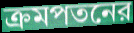
ক্রমপতনের